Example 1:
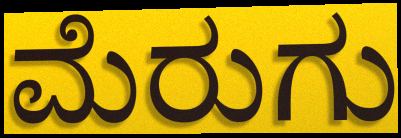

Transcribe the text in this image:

ಮೆರುಗು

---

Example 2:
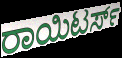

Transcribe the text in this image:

ರಾಯಿಟರ್ಸ್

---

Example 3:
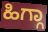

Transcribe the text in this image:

ಹಿಗ್ಗಾ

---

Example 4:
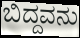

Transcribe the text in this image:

ಬಿದ್ದವನು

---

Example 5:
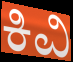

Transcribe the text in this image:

ಕಿವಿ